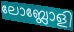
ലോബ്ലോളി